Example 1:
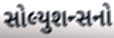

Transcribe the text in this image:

સોલ્યુશન્સનો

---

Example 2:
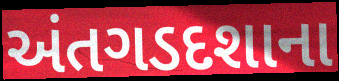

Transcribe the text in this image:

અંતગડદશાના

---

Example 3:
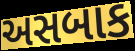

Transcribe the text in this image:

અસબાક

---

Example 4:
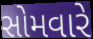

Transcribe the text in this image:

સોમવારે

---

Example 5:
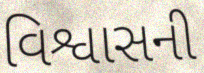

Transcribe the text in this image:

વિશ્વાસની